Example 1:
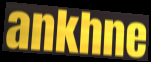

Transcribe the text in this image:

ankhne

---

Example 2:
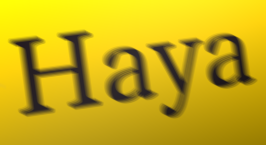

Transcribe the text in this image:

Haya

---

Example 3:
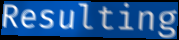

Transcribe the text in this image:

Resulting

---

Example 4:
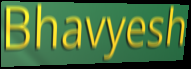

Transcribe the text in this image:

Bhavyesh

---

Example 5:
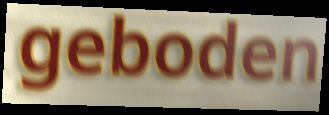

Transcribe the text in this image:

geboden